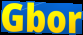
Gbor